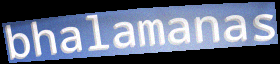
bhalamanas